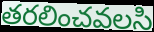
తరలించవలసి